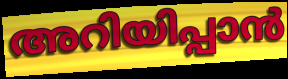
അറിയിപ്പാൻ